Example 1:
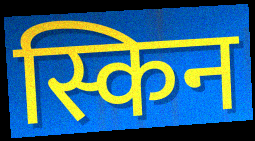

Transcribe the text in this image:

स्किन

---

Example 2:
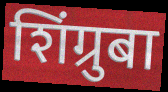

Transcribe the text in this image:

शिंग्रुबा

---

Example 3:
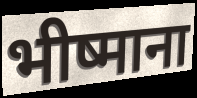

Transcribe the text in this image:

भीष्माना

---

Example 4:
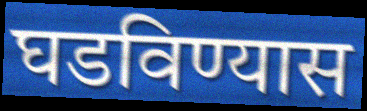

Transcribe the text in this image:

घडविण्यास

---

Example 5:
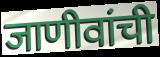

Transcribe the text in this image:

जाणीवांची